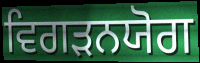
ਵਿਗੜਨਯੋਗ